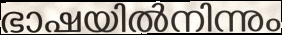
ഭാഷയിൽനിന്നും